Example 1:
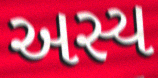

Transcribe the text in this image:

અસ્ય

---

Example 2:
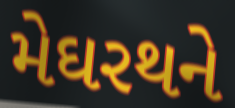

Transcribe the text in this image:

મેઘરથને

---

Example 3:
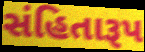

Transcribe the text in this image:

સંહિતારૂપ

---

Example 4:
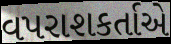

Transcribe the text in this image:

વપરાશકર્તાએ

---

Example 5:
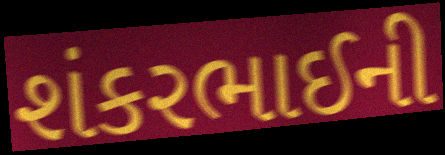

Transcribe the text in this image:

શંકરભાઈની